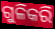
ଗୁଳିକରି